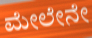
ಮೇಲೇನೇ